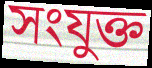
সংযুক্ত